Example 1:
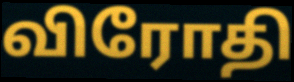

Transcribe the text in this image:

விரோதி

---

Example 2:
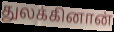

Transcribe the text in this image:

துலக்கினான்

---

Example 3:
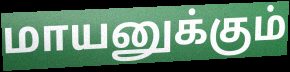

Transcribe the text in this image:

மாயனுக்கும்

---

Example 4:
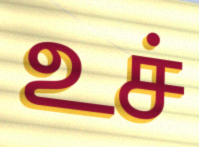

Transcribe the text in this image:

உச்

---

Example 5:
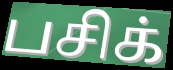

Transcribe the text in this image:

பசிக்